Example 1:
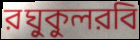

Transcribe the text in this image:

রঘুকুলরবি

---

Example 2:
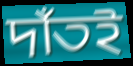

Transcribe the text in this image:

দাঁতই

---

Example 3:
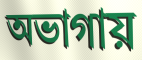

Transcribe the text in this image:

অভাগায়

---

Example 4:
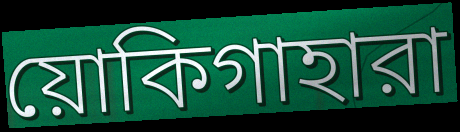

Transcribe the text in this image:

য়োকিগাহারা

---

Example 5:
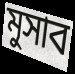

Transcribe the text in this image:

মুসাব